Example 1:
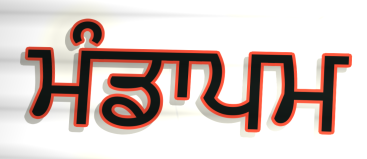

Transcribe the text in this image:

ਮੰਡਾਪਮ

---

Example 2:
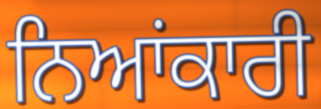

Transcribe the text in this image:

ਨਿਆਂਕਾਰੀ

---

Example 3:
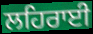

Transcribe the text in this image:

ਲਹਿਰਾਈ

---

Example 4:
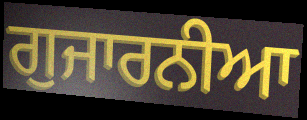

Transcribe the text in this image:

ਗੁਜਾਰਨੀਆ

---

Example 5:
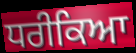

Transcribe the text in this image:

ਧਰੀਕਿਆ